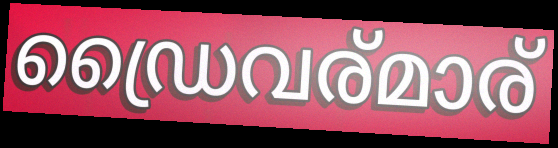
ഡ്രൈവര്മാര്